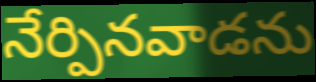
నేర్పినవాడను